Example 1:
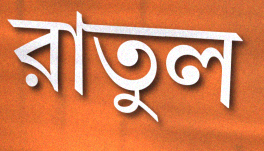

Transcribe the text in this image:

রাতুল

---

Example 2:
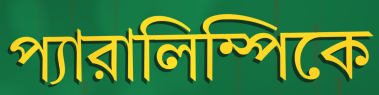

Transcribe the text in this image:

প্যারালিম্পিকে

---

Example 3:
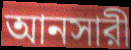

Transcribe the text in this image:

আনসারী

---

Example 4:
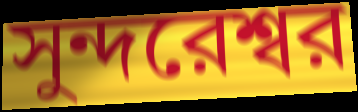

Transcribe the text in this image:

সুন্দরেশ্বর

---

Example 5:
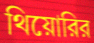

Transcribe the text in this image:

থিয়োরির